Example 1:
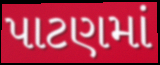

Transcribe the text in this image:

પાટણમાં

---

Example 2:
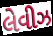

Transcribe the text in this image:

લેવીઝ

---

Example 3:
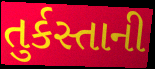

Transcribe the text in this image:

તુર્કસ્તાની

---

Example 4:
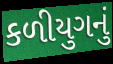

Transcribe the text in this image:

કળીયુગનું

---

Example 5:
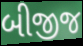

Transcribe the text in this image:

બીજીજ